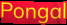
Pongal